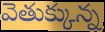
వెతుక్కున్న